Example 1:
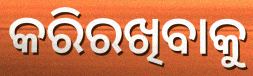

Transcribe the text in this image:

କରିରଖିବାକୁ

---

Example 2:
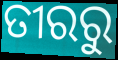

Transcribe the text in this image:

ତୀରରୁ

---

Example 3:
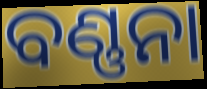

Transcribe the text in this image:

ବଣ୍ଣନା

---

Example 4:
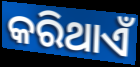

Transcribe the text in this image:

କରିଥାଏଁ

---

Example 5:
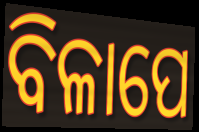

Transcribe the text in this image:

ବିଳାପେ